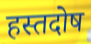
हस्तदोष